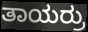
ತಾಯರ್ರು